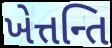
ખેત્તન્તિ